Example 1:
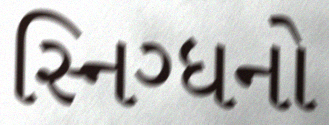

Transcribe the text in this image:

સ્નિગ્ધનો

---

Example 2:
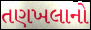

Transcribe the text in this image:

તણખલાનો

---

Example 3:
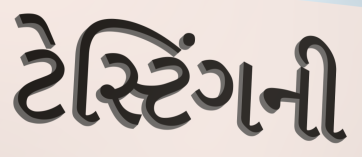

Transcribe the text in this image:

ટેસ્ટિંગની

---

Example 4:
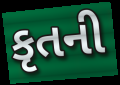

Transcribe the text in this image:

કૃતની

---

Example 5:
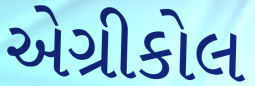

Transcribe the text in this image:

એગ્રીકોલ